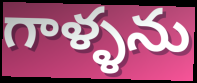
గాళ్ళను